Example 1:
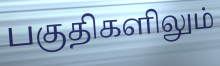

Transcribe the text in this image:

பகுதிகளிலும்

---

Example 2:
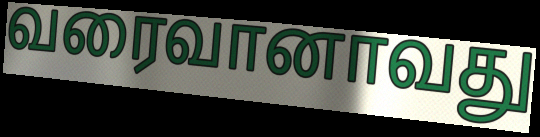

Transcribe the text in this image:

வரைவானாவது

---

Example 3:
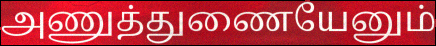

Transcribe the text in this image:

அணுத்துணையேனும்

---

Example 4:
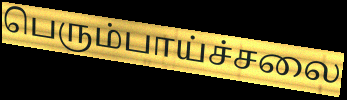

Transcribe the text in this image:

பெரும்பாய்ச்சலை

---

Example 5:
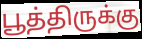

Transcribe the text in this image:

பூத்திருக்கு